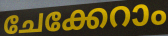
ചേക്കേറാം